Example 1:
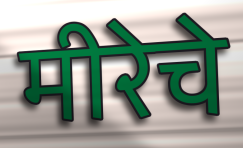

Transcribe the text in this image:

मीरेचे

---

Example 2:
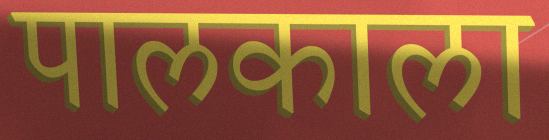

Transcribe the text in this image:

पालकाला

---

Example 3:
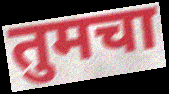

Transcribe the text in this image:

तुमचा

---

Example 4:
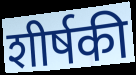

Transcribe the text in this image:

शीर्षकी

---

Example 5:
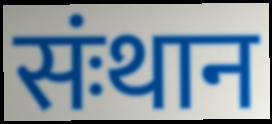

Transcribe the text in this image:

संःथान